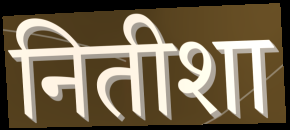
नितीशा